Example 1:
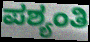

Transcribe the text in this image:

ಪಶ್ಯಂತಿ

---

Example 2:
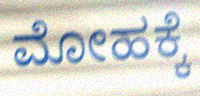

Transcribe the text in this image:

ಮೋಹಕ್ಕೆ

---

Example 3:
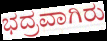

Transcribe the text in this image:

ಭದ್ರವಾಗಿರು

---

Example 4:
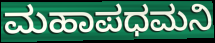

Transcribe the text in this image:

ಮಹಾಪಧಮನಿ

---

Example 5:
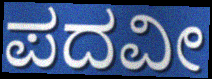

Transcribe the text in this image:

ಪದವೀ